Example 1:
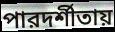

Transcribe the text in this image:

পারদর্শীতায়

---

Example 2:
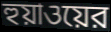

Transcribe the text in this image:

হুয়াওয়ের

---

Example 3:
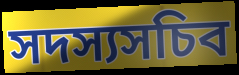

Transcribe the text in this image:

সদস্যসচিব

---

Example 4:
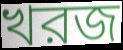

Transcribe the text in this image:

খরজ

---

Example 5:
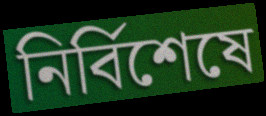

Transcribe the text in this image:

নির্বিশেষে